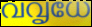
വവൃധേ